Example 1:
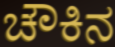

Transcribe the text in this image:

ಚೌಕಿನ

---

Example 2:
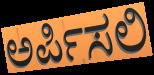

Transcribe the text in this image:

ಅರ್ಪಿಸಲಿ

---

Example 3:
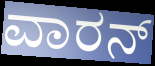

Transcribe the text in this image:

ವಾರನ್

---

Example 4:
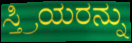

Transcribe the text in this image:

ಸ್ತ್ರಿಯರನ್ನು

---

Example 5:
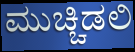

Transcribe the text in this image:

ಮುಚ್ಚಿಡಲಿ